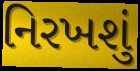
નિરખશું